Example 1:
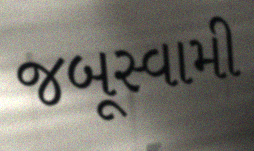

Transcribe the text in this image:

જબૂસ્વામી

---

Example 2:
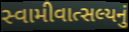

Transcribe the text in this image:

સ્વામીવાત્સલ્યનું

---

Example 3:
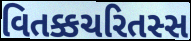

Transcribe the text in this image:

વિતક્કચરિતસ્સ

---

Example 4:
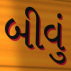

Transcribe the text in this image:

બીવું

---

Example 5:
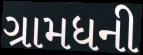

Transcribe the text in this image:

ગ્રામધની